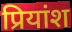
प्रियांश